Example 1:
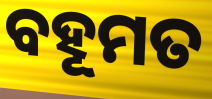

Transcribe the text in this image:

ବହୂମତ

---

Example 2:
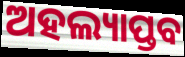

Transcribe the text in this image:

ଅହଲ୍ୟାପ୍ତବ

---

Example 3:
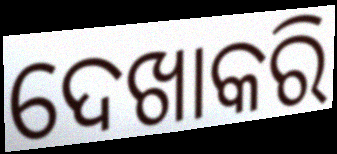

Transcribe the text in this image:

ଦେଖାକରି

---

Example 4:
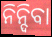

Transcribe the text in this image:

ନିନ୍ଦିବା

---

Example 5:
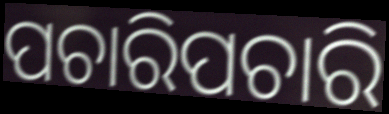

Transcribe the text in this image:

ପଚାରିପଚାରି